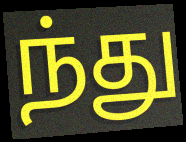
ந்து